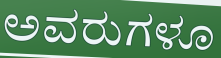
ಅವರುಗಳೂ